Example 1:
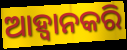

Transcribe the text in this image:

ଆହ୍ୱାନକରି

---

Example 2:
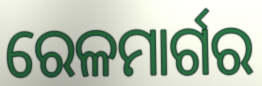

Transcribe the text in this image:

ରେଳମାର୍ଗର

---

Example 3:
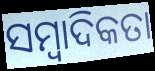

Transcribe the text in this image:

ସମ୍ବାଦିକତା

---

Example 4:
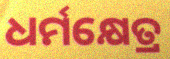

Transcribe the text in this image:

ଧର୍ମକ୍ଷେତ୍ର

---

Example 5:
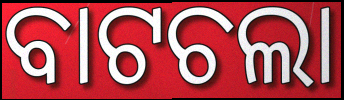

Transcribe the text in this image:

ବାଟଚଲା